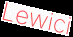
Lewici